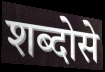
शब्दोसे